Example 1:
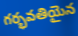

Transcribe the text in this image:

గర్భవతియైన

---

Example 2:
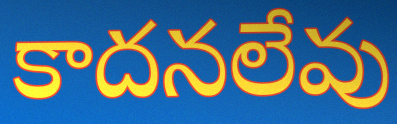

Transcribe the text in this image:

కాదనలేవు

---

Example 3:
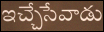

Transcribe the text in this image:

ఇచ్చేసేవాడు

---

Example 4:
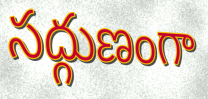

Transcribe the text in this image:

సద్గుణంగా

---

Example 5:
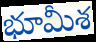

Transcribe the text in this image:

భూమీశ